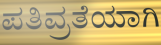
ಪತಿವ್ರತೆಯಾಗಿ